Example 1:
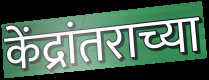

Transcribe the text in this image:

केंद्रांतराच्या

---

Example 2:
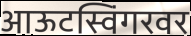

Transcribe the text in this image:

आऊटस्विंगरवर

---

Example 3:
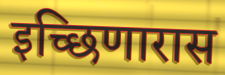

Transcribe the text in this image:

इच्छिणारास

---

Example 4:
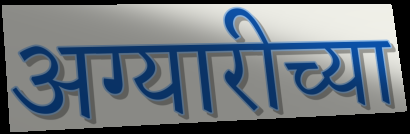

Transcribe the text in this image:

अग्यारीच्या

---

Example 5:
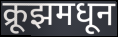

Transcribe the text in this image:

क्रूझमधून